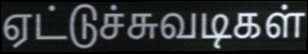
ஏட்டுச்சுவடிகள்